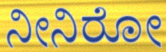
ನೀನಿರೋ